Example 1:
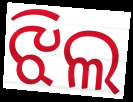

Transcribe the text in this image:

ଝିଲ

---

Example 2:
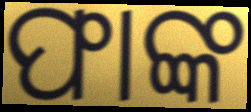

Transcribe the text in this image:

ଫାଙ୍କ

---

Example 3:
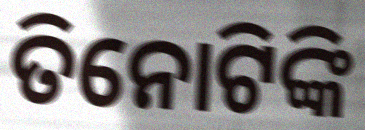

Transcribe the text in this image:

ତିନୋଟିଙ୍କି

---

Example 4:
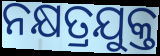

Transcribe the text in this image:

ନକ୍ଷତ୍ରଯୁକ୍ତ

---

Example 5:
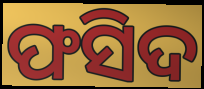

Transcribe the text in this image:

ଫସିଦ